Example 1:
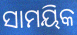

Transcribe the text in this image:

ସାମୟିକ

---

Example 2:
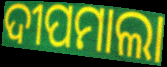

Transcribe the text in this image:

ଦୀପମାଲା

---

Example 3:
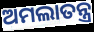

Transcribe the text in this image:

ଅମଲାତନ୍ତ୍ର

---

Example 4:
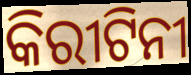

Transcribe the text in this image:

କିରୀଟିନୀ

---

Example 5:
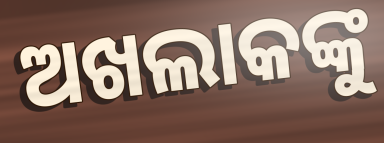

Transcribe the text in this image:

ଅଖଲାକଙ୍କୁ